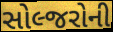
સોલ્જરોની